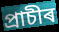
প্ৰাচীৰ